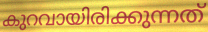
കുറവായിരിക്കുന്നത്